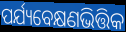
ପର୍ଯ୍ୟବେକ୍ଷଣଭିତ୍ତିକ